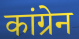
कांग्रेन